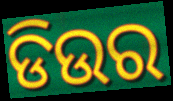
ଡିଉର